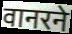
वानरने